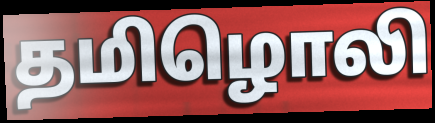
தமிழொலி